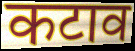
कटाव